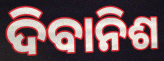
ଦିବାନିଶ